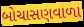
બોચાસણવાળા